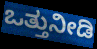
ಒತ್ತುನೀಡಿ